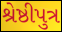
શ્રેષ્ઠીપુત્ર